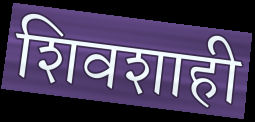
शिवशाही